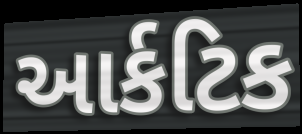
આર્કટિક